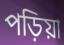
পড়িয়া